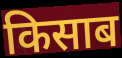
किसाब